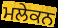
ਮਲੇਕਨ